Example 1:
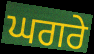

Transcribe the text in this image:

ਘਗਰੇ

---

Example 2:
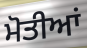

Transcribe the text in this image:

ਮੋਤੀਆਂ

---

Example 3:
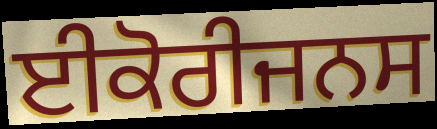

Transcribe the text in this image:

ਈਕੋਰੀਜਨਸ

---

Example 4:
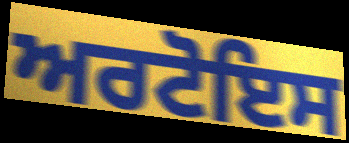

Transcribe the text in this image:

ਅਰਟੋਇਸ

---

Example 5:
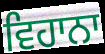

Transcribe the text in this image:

ਵਿਹਾਨਾ